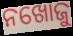
ନଖୋଜୁ